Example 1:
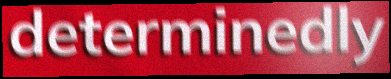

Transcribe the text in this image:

determinedly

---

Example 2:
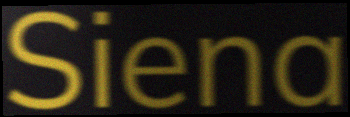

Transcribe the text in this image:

Siena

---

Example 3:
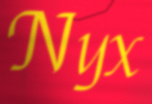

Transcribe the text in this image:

Nyx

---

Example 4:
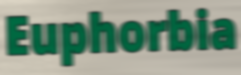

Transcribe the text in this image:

Euphorbia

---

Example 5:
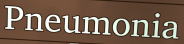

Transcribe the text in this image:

Pneumonia